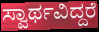
ಸ್ವಾರ್ಥವಿದ್ದರೆ